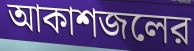
আকাশজলের